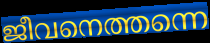
ജീവനെത്തന്നെ